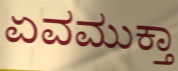
ಏವಮುಕ್ತಾ